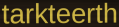
tarkteerth